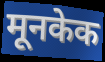
मूनकेक